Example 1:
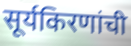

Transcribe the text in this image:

सूर्यकिरणांची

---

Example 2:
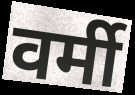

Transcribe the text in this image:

वर्मी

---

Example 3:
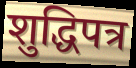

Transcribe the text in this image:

शुद्धिपत्र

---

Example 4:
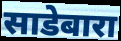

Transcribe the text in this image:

साडेबारा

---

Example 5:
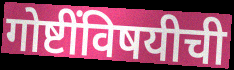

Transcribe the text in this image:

गोष्टींविषयीची